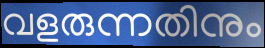
വളരുന്നതിനും